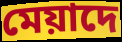
মেয়াদে